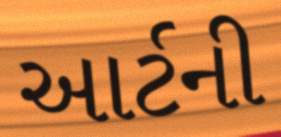
આર્ટની